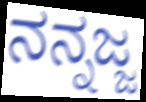
ನನ್ನಜ್ಜ